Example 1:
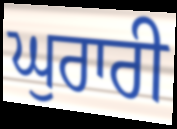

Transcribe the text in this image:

ਘੁਰਾਰੀ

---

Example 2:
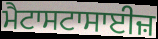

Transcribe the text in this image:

ਮੈਟਾਸਟਾਸਾਈਜ਼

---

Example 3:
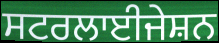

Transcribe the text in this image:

ਸਟਰਲਾਈਜੇਸ਼ਨ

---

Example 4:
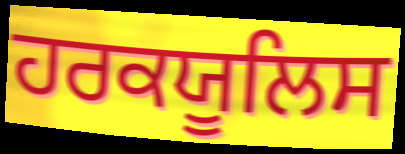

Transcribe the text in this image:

ਹਰਕਯੂਲਿਸ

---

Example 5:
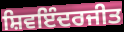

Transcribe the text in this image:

ਸ਼ਿਵਇੰਦਰਜੀਤ